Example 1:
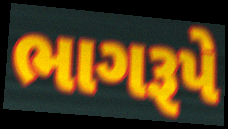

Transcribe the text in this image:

ભાગરૂપે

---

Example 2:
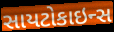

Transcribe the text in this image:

સાયટોકાઇન્સ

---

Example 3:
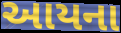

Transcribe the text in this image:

આયના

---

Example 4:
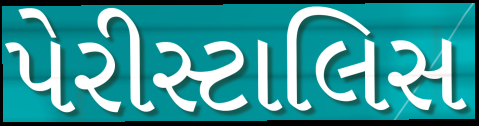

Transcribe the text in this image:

પેરીસ્ટાલિસ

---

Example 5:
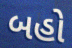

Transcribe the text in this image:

બહો